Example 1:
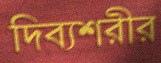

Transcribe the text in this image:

দিব্যশরীর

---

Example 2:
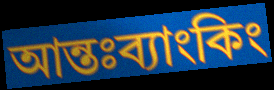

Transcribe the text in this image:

আন্তঃব্যাংকিং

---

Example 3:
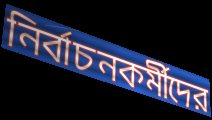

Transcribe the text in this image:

নির্বাচনকর্মীদের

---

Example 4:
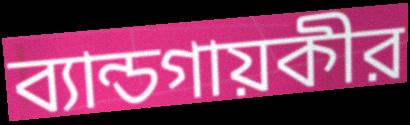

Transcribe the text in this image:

ব্যান্ডগায়কীর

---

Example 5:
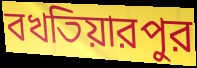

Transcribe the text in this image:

বখতিয়ারপুর